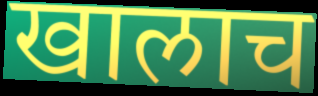
खालाच